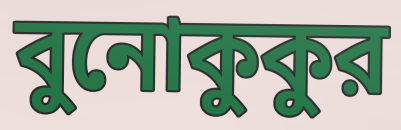
বুনোকুকুর